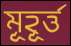
মূহূর্ত্ত